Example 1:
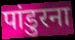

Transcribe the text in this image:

पांडुरना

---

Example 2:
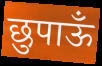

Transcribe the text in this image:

छुपाऊँ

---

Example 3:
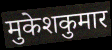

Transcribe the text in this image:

मुकेशकुमार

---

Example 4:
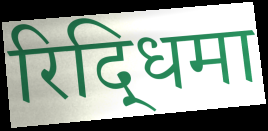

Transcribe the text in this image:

रिद्धिमा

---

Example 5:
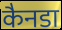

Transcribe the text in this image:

कैनडा